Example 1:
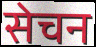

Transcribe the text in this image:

सेचन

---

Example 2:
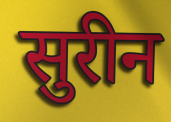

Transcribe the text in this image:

सुरीन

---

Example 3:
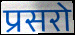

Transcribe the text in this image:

प्रसरो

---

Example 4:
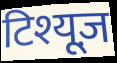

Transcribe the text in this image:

टिश्यूज़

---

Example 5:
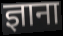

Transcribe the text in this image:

ज्ञाना